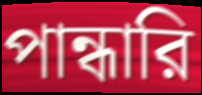
পান্ধারি